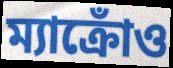
ম্যাক্রোঁও